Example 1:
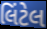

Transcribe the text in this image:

લિંટેલ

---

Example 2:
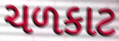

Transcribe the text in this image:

ચળકાટ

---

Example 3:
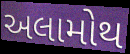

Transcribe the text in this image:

અલામોથ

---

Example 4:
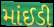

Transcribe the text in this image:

માંઈડી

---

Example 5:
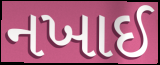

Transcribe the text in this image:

નખાઈ